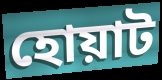
হোয়াট